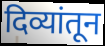
दिव्यांतून